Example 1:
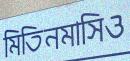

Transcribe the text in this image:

মিতিনমাসিও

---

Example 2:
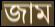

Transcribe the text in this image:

জাম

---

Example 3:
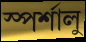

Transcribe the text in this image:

স্পর্শালু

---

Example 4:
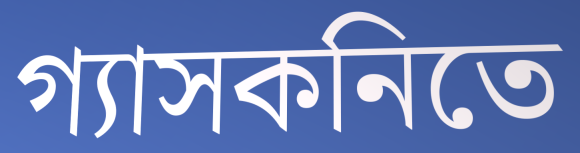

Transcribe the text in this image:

গ্যাসকনিতে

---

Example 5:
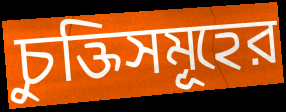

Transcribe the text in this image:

চুক্তিসমূহের